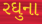
રઘુના